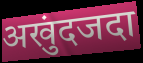
अखुंदजदा